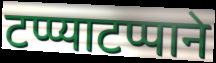
टप्प्याटप्पाने